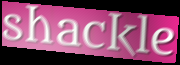
shackle